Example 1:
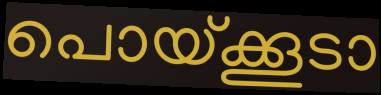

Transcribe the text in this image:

പൊയ്ക്കൂടാ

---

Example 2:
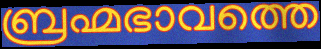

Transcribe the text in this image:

ബ്രഹ്മഭാവത്തെ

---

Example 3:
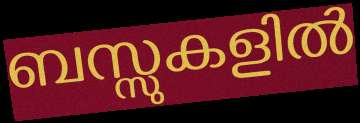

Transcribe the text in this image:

ബസ്സുകളിൽ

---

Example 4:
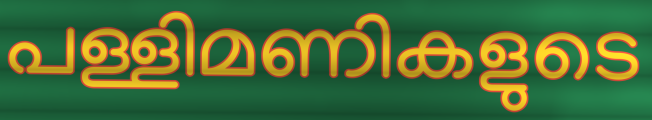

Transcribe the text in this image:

പള്ളിമണികളുടെ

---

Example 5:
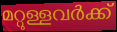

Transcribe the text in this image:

മറ്റുള്ളവർക്ക്